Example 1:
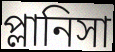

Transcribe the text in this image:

প্লানিসা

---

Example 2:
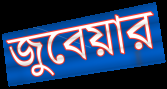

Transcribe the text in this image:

জুবেয়ার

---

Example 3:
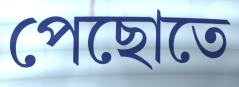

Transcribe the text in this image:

পেছোতে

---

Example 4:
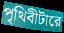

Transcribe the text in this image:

পৃথিবীটারে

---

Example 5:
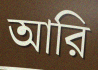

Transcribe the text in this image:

আরি